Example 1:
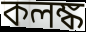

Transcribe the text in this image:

কলঙ্ক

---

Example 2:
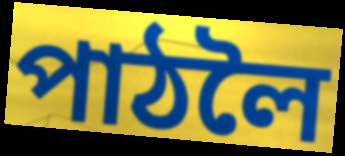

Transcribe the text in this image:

পাঠলৈ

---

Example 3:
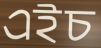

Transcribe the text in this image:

এইচ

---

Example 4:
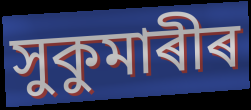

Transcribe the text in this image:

সুকুমাৰীৰ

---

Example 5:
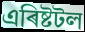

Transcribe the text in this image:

এৰিষ্টটল